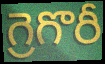
గ్రెగొరీ